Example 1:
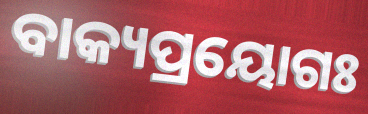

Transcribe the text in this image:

ବାକ୍ୟପ୍ରୟୋଗଃ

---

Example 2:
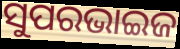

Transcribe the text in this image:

ସୁପରଭାଇଜ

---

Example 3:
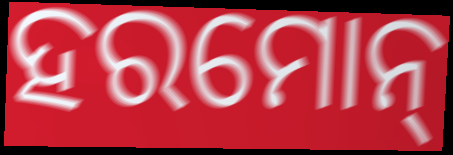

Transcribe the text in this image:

ହରମୋନ୍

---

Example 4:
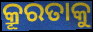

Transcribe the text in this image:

କ୍ରୂରତାକୁ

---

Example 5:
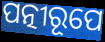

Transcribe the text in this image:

ପତ୍ନୀରୂପେ